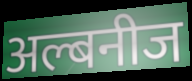
अल्‍बनीज